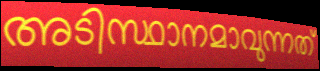
അടിസ്ഥാനമാവുന്നത്